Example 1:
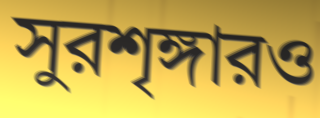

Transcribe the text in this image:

সুরশৃঙ্গারও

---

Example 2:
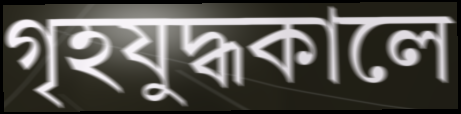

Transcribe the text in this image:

গৃহযুদ্ধকালে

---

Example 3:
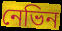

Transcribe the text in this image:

নেভিন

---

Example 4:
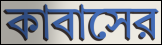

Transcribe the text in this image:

কাবাসের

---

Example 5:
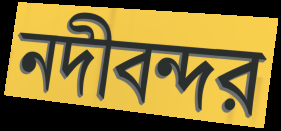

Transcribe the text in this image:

নদীবন্দর